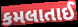
કમલાતાઈ